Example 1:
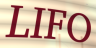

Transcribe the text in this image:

LIFO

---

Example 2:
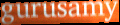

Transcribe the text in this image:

gurusamy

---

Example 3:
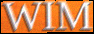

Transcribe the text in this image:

WIM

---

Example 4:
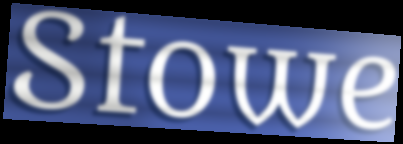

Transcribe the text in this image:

Stowe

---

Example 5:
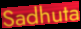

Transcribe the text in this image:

Sadhuta